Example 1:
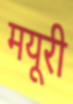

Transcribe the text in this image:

मयूरी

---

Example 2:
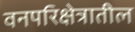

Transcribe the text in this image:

वनपरिक्षेत्रातील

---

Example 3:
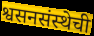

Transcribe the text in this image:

श्वसनसंस्थेची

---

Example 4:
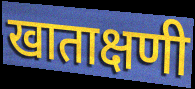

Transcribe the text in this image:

खाताक्षणी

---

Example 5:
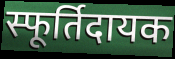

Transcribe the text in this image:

स्फूर्तिदायक